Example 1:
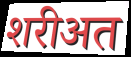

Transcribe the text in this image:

शरीअत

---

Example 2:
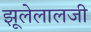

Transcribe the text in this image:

झूलेलालजी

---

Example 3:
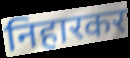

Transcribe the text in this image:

निहारकर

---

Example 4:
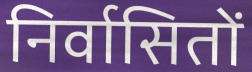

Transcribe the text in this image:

निर्वासितों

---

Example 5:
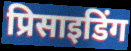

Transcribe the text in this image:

प्रिसाइडिंग